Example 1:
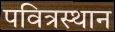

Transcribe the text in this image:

पवित्रस्‍थान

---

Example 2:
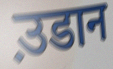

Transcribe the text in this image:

उ़डान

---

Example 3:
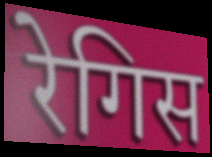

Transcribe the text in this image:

रेगिस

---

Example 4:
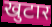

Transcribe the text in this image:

खुटार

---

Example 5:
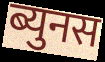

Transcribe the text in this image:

ब्युनस